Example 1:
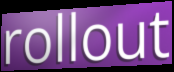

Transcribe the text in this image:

rollout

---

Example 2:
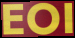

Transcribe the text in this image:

EOI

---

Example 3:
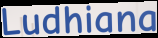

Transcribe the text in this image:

Ludhiana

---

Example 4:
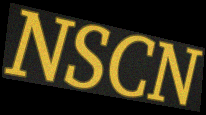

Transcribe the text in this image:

NSCN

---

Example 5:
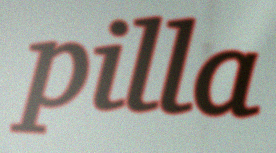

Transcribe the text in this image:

pilla